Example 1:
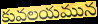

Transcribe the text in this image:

కువలయమున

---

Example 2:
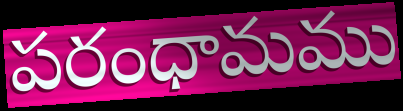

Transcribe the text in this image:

పరంధామము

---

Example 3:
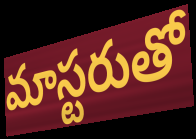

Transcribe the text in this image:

మాస్టరుతో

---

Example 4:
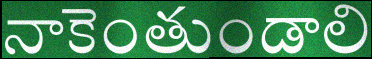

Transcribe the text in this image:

నాకెంతుండాలి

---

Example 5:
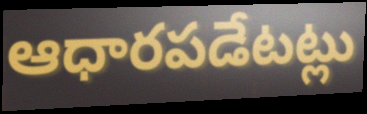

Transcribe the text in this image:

ఆధారపడేటట్లు